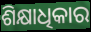
ଶିକ୍ଷାଧିକାର